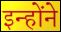
इन्होंने